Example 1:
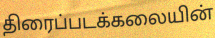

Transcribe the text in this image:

திரைப்படக்கலையின்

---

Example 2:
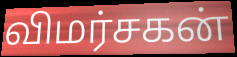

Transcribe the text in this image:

விமர்சகன்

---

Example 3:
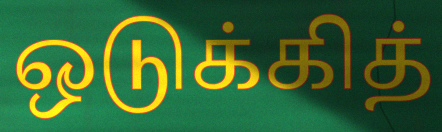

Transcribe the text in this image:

ஒடுக்கித்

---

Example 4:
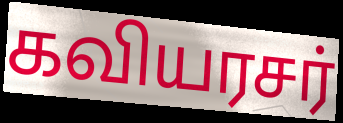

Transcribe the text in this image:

கவியரசர்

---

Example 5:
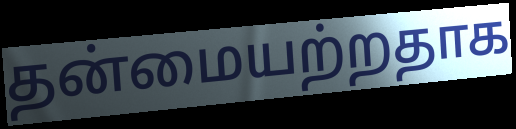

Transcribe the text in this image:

தன்மையற்றதாக